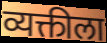
व्यक्तीला